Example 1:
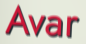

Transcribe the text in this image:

Avar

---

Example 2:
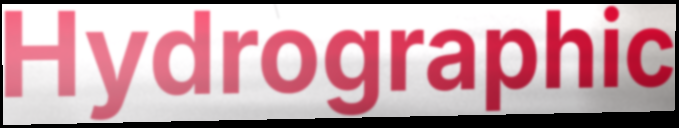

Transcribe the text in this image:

Hydrographic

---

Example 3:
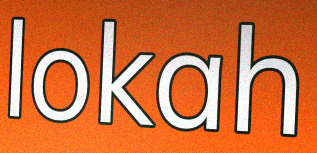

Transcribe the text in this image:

lokah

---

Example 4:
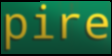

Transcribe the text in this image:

pire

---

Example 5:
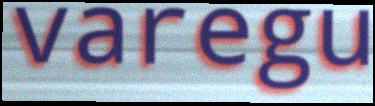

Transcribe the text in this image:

varegu